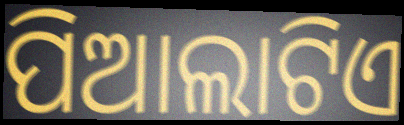
ପିଆଲାଟିଏ